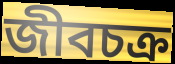
জীবচক্র